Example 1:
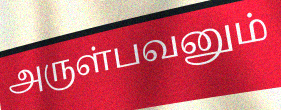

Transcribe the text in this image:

அருள்பவனும்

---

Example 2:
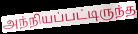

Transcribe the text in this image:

அந்நியப்பட்டிருந்த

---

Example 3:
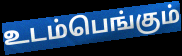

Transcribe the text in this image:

உடம்பெங்கும்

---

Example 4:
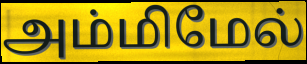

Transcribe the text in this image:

அம்மிமேல்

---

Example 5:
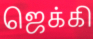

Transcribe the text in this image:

ஜெக்கி